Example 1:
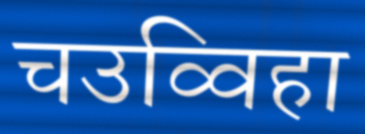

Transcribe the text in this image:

चउव्विहा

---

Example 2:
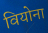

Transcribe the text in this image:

वियोना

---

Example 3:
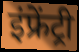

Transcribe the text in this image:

इंफ्रेंट्री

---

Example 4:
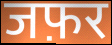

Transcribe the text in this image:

जफ़र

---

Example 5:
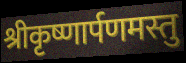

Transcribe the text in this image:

श्रीकृष्णार्पणमस्तु